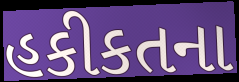
હકીકતના